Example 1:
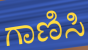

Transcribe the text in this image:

ಗಾಣಿಸಿ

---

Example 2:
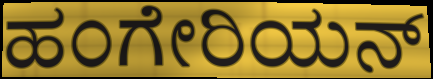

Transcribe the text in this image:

ಹಂಗೇರಿಯನ್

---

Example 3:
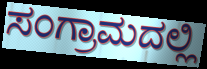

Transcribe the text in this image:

ಸಂಗ್ರಾಮದಲ್ಲಿ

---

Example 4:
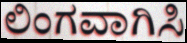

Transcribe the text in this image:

ಲಿಂಗವಾಗಿಸಿ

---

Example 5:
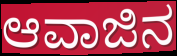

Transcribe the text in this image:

ಆವಾಜಿನ